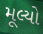
મૂલ્યો